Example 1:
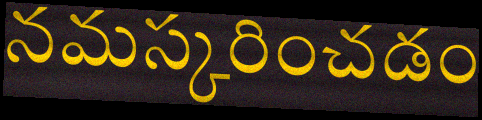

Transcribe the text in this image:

నమస్కరించడం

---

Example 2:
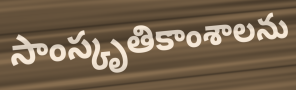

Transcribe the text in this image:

సాంస్కృతికాంశాలను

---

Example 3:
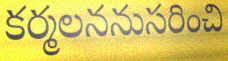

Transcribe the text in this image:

కర్మలననుసరించి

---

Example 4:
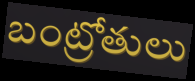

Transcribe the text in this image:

బంట్రోతులు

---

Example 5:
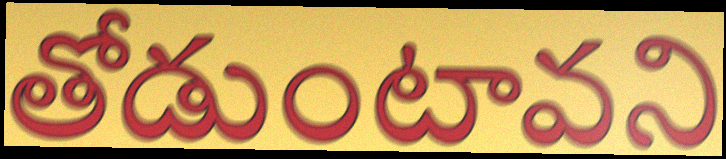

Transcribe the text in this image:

తోడుంటావని